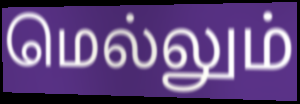
மெல்லும்